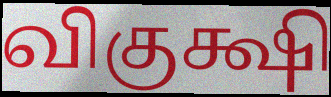
விகுக்ஷி